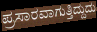
ಪ್ರಸಾರವಾಗುತ್ತಿದ್ದುದು